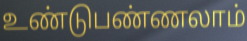
உண்டுபண்ணலாம்